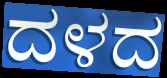
ದಳದ